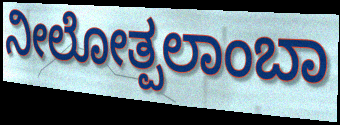
ನೀಲೋತ್ಪಲಾಂಬಾ